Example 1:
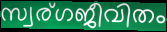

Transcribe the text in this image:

സ്വര്ഗജീവിതം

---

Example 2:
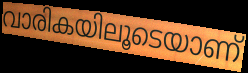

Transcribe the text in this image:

വാരികയിലൂടെയാണ്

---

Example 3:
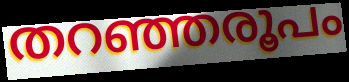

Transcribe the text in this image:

തറഞ്ഞരൂപം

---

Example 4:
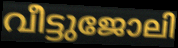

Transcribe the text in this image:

വീട്ടുജോലി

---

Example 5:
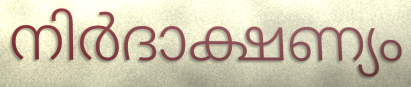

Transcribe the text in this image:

നിർദാക്ഷണ്യം